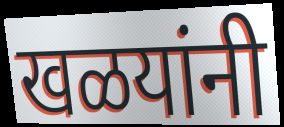
खळयांनी